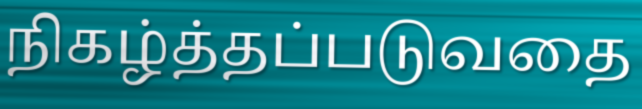
நிகழ்த்தப்படுவதை